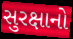
સુરક્ષાનો